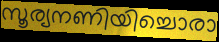
സൂര്യനണിയിച്ചൊരാ